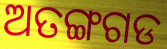
ଅତଙ୍ଗଗଡ